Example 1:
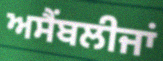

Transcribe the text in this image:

ਅਸੈਂਬਲੀਜਾਂ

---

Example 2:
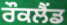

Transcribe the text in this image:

ਰੌਕਲੈਂਡ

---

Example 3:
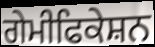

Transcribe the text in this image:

ਗੇਮੀਫਿਕੇਸ਼ਨ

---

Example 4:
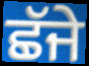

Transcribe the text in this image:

ਛੱਜੇ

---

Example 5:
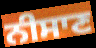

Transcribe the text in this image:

ਨੀਸਾਣ